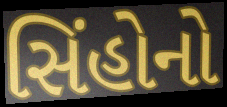
સિંહોનો